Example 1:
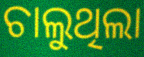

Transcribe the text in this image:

ଚାଲୁଥିଲା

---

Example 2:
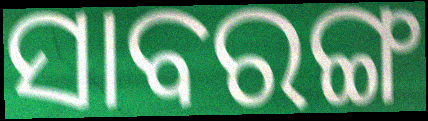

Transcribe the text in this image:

ସାବରଙ୍ଗ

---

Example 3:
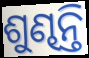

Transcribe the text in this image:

ଶୁଣ୍ଢନ୍ତି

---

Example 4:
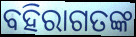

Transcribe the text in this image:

ବହିରାଗତଙ୍କ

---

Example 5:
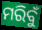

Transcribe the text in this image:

ମରିବୁଁ